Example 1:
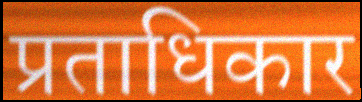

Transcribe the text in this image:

प्रताधिकार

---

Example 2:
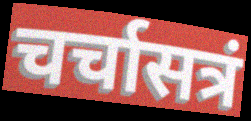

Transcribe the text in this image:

चर्चासत्रं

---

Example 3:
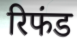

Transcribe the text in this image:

रिफंड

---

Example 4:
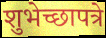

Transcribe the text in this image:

शुभेच्छापत्रे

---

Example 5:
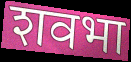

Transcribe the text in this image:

शवभा